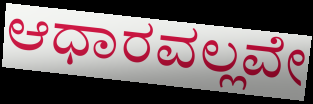
ಆಧಾರವಲ್ಲವೇ